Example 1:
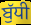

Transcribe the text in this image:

ਬੁੱਧੀ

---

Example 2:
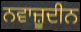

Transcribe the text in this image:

ਨਵਾਜ਼ੂਦੀਨ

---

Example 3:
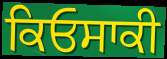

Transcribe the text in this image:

ਕਿਓਸਾਕੀ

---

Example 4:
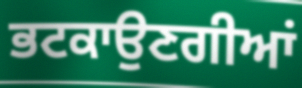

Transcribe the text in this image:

ਭਟਕਾਉਣਗੀਆਂ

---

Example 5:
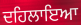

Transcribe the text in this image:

ਦਹਿਲਾਇਆ